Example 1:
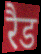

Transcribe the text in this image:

रैड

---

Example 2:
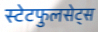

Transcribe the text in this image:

स्टेटफुलसेट्स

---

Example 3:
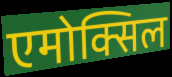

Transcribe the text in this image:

एमोक्सिल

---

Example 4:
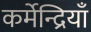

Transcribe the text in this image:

कर्मेन्द्रियाँ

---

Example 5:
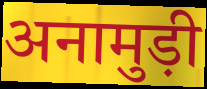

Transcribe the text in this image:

अनामुड़ी